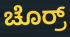
ಚೊರ್ರ್